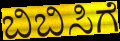
ಬಿಬಿಸಿಗೆ